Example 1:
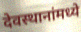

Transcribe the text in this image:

देवस्थानांमध्ये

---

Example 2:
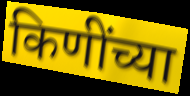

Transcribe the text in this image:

किणींच्या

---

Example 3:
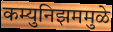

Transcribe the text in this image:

कम्युनिझममुळे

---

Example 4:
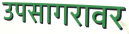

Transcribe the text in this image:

उपसागरावर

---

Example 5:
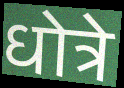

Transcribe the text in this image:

धोत्रे